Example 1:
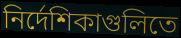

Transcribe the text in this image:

নির্দেশিকাগুলিতে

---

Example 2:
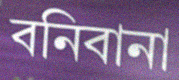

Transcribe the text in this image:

বনিবানা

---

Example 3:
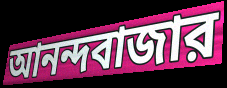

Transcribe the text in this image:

আনন্দবাজার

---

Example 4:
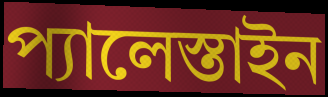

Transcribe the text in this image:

প্যালেস্তাইন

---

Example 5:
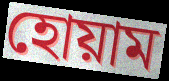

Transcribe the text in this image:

হোয়াম